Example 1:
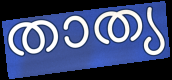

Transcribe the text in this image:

താത്യ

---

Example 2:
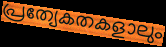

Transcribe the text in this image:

പ്രത്യേകതകളാലും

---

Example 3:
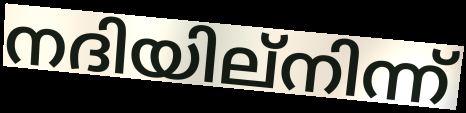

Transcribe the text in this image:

നദിയില്നിന്ന്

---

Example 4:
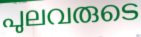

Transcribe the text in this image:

പുലവരുടെ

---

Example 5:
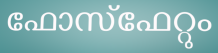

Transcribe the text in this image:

ഫോസ്ഫേറ്റും